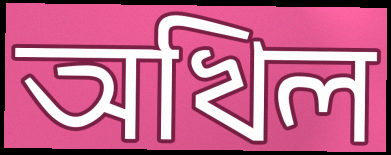
অখিল